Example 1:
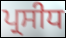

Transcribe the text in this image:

ਪ੍ਰਸੀਧ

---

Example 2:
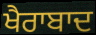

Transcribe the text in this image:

ਖੈਰਾਬਾਦ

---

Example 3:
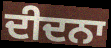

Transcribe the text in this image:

ਦੀਦਨਾ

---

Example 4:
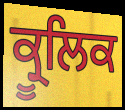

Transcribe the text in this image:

ਕ੍ਰੂਲਿਕ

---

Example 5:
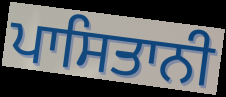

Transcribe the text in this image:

ਪਾਸਿਤਾਨੀ